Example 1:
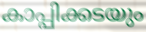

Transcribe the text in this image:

കാപ്പിക്കടയും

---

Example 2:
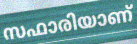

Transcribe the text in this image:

സഫാരിയാണ്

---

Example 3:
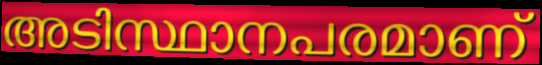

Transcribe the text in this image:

അടിസ്ഥാനപരമാണ്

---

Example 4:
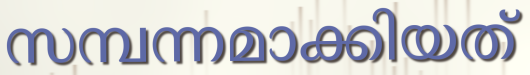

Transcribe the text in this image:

സമ്പന്നമാക്കിയത്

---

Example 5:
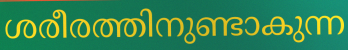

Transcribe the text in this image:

ശരീരത്തിനുണ്ടാകുന്ന